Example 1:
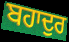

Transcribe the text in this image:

ਬਹਾਦੁਰ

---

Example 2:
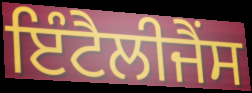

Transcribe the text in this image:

ਇੰਟੈਲੀਜੈਂਸ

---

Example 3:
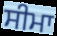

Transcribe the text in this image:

ਸੀਮਾ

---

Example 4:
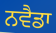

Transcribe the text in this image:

ਨਵੈਡਾ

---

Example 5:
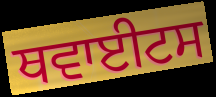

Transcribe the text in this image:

ਥਵਾਈਟਸ